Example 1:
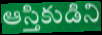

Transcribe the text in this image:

ఆస్తికుడిని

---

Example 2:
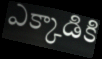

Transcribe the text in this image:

ఎక్కాడికి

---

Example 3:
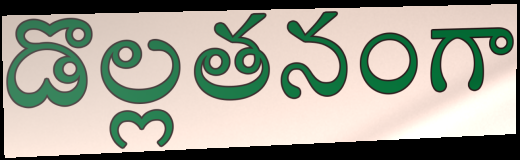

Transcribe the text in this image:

డొల్లతనంగా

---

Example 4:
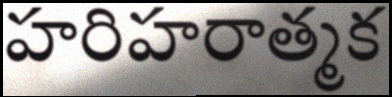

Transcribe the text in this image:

హరిహరాత్మక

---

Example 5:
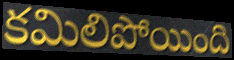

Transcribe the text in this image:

కమిలిపోయింది